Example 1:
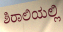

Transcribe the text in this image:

ಶಿರಾಲಿಯಲ್ಲಿ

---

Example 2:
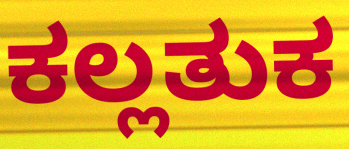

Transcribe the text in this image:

ಕಲ್ಲತುಕ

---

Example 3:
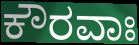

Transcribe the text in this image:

ಕೌರವಾಃ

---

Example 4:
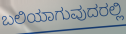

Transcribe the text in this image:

ಬಲಿಯಾಗುವುದರಲ್ಲಿ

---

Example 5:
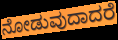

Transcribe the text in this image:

ನೋಡುವುದಾದರೆ